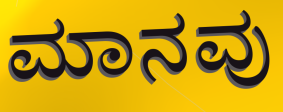
ಮಾನವು